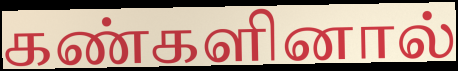
கண்களினால்